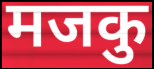
मजकु